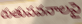
రుతుపవనాలపై